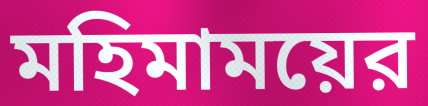
মহিমাময়ের